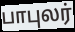
பாபுலர்